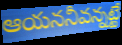
ఆయననీవన్నట్టే